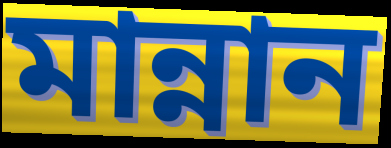
মান্নান